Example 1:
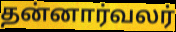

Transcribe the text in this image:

தன்னார்வலர்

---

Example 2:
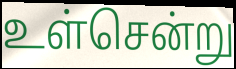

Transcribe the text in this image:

உள்சென்று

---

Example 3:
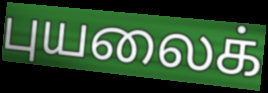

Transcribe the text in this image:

புயலைக்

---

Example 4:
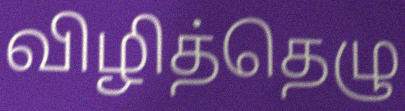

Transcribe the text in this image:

விழித்தெழு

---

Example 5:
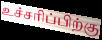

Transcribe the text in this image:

உச்சரிப்பிற்கு